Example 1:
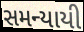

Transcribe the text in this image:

સમન્યાયી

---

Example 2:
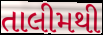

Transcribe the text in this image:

તાલીમથી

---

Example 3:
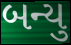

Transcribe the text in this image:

બન્યુ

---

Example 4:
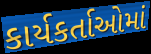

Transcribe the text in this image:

કાર્યકર્તાઓમાં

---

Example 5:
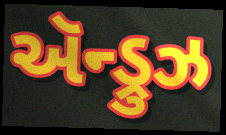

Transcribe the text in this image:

ઍન્ડ્રુઝ